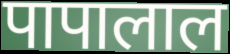
पापालाल